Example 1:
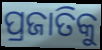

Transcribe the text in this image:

ପ୍ରଜାତିକୁ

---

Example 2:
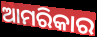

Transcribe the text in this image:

ଆମରିକାର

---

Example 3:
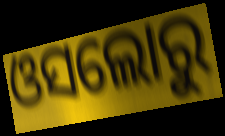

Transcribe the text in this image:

ଓସଲୋରୁ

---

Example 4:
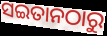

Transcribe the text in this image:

ସଇତାନଠାରୁ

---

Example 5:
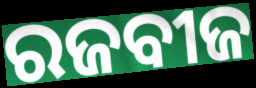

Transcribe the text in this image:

ରଜବୀଜ